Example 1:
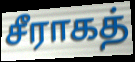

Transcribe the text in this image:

சீராகத்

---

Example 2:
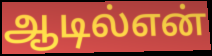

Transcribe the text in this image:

ஆடில்என்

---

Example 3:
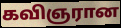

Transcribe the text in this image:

கவிஞரான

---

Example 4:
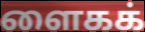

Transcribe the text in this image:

ளைகக்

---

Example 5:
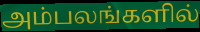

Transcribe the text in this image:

அம்பலங்களில்